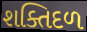
શક્તિદળ